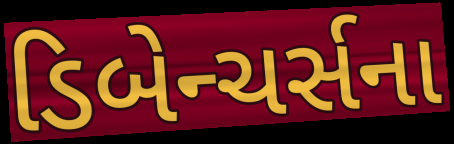
ડિબેન્ચર્સના